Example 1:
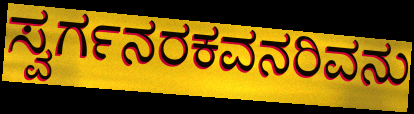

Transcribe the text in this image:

ಸ್ವರ್ಗನರಕವನರಿವನು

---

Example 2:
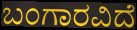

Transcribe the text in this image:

ಬಂಗಾರವಿದೆ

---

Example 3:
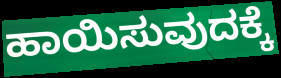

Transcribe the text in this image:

ಹಾಯಿಸುವುದಕ್ಕೆ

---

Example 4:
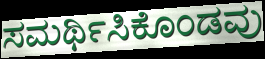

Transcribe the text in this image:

ಸಮರ್ಥಿಸಿಕೊಂಡವು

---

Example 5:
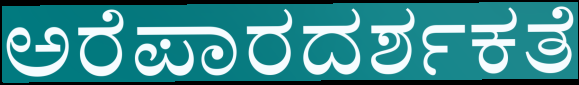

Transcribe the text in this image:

ಅರೆಪಾರದರ್ಶಕತೆ